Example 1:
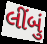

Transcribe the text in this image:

લીંબું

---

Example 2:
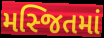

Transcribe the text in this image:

મસ્જિતમાં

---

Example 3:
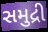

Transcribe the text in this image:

સમુદ્રી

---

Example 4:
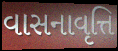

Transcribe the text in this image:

વાસનાવૃત્તિ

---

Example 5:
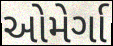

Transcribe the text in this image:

ઓમેર્ગા